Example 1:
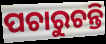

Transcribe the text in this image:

ପଚାରୁଚନ୍ତି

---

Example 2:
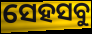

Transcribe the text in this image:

ସେହସବୁ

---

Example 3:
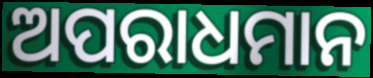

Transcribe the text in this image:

ଅପରାଧମାନ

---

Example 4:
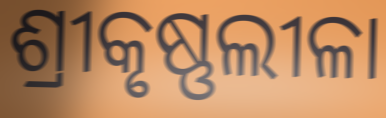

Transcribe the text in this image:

ଶ୍ରୀକୃଷ୍ଣଲୀଳା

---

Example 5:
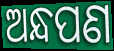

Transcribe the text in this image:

ଅନ୍ଧପଣ